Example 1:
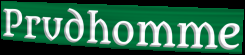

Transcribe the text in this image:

Prudhomme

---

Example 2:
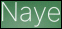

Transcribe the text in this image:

Naye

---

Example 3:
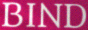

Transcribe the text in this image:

BIND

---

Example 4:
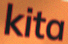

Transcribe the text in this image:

kita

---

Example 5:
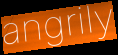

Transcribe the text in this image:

angrily